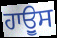
ਹਾਊੁਸ